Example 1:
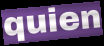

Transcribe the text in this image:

quien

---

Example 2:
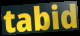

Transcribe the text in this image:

tabid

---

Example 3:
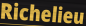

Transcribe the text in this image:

Richelieu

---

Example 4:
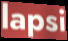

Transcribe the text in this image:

lapsi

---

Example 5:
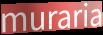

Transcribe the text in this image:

muraria